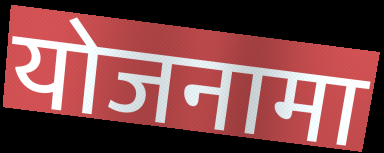
योजनामा